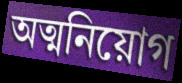
অত্মনিয়োগ